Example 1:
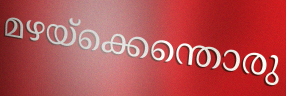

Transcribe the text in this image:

മഴയ്ക്കെന്തൊരു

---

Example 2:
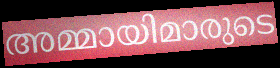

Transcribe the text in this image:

അമ്മായിമാരുടെ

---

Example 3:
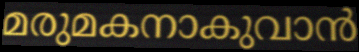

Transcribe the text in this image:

മരുമകനാകുവാൻ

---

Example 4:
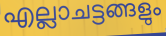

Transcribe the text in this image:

എല്ലാചട്ടങ്ങളും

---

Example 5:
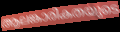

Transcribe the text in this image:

ആലങ്കാരികതയുടെ